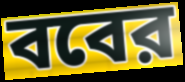
ববের